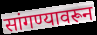
सांगण्यावरून